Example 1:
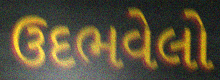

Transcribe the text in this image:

ઉદભવેલો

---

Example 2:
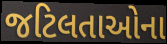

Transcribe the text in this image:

જટિલતાઓના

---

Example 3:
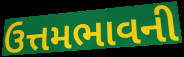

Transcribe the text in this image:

ઉત્તમભાવની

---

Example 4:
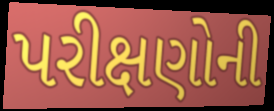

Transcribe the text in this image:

પરીક્ષણોની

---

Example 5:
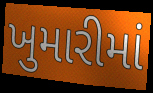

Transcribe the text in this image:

ખુમારીમાં